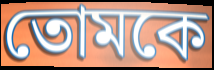
তোমকে